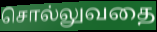
சொல்லுவதை